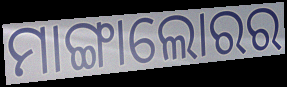
ମାଙ୍ଗାଲୋରର